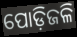
ପୋଡ଼ିଜଳି